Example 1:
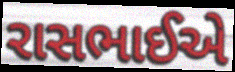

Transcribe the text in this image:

રાસભાઈએ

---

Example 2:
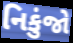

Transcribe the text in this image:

નિકુંજો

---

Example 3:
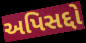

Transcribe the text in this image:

અપિસદ્દો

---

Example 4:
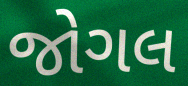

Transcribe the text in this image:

જોગલ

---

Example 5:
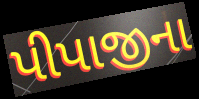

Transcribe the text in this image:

પીપાજીના